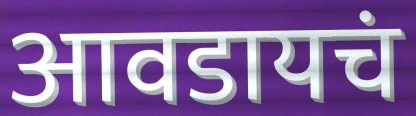
आवडायचं